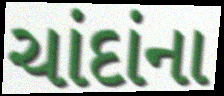
ચાંદાંના